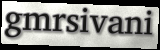
gmrsivani